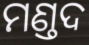
ମଣ୍ଡଦ